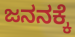
ಜನನಕ್ಕೆ